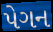
પેગન